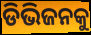
ଡିଭିଜନକୁ